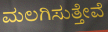
ಮಲಗಿಸುತ್ತೇವೆ